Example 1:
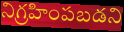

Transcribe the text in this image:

నిగ్రహింపబడని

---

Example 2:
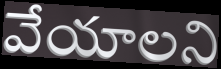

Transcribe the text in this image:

వేయాలని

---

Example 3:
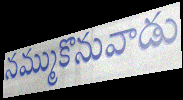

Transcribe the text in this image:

నమ్ముకొనువాడు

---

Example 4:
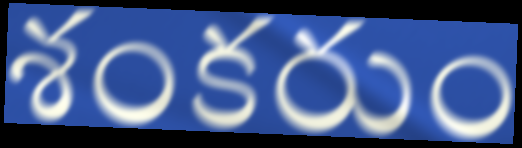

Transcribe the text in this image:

శంకరుం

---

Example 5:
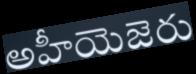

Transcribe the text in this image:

అహీయెజెరు